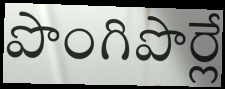
పొంగిపొర్లే